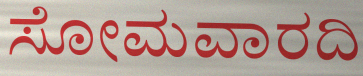
ಸೋಮವಾರದಿ